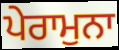
ਪੇਰਾਮੁਨਾ